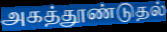
அகத்தூண்டுதல்